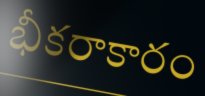
భీకరాకారం